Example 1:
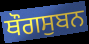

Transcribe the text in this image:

ਥੌਗਸੁਬਨ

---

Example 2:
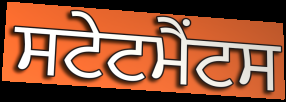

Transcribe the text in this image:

ਸਟੇਟਮੈਂਟਸ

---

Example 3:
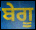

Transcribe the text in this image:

ਬੇਗੂ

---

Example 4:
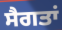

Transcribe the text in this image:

ਸੈਗਤਾਂ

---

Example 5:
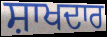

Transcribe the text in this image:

ਸ਼ਾਖਦਾਰ